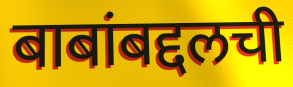
बाबांबद्दलची